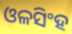
ଓଳସିଂହ